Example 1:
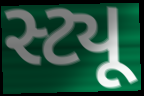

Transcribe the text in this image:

સ્ટ્યૂ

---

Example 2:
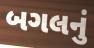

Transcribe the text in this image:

બગલનું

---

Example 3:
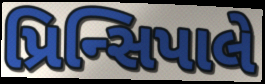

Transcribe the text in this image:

પ્રિન્સિપાલે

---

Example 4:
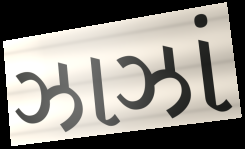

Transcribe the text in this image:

ઝાઝાં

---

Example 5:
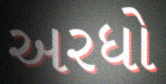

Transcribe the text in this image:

અરધો